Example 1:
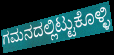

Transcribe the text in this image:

ಗಮನದಲ್ಲಿಟ್ಟುಕೊಳ್ಳಿ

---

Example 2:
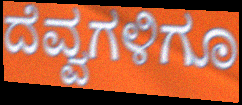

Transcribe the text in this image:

ದೆವ್ವಗಳಿಗೂ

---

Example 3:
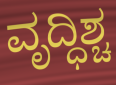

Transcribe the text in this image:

ವೃದ್ಧಿಶ್ಚ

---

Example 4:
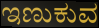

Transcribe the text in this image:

ಇಣುಕುವ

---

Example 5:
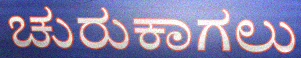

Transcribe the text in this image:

ಚುರುಕಾಗಲು